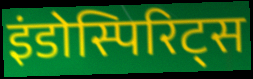
इंडोस्पिरिट्स